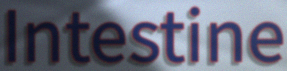
Intestine